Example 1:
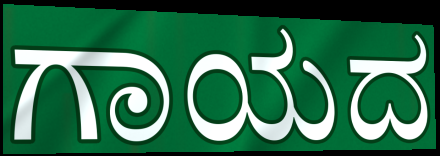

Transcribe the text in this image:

ಗಾಯದ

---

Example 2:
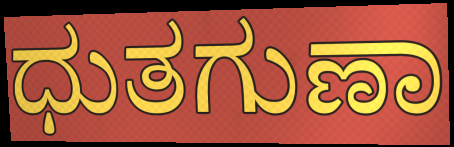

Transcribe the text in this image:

ಧುತಗುಣಾ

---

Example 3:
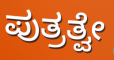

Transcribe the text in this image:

ಪುತ್ರತ್ವೇ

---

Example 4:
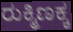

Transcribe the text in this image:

ರುಕ್ಮಿಣಕ್ಕ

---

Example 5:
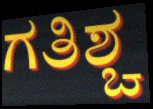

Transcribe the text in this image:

ಗತಿಶ್ಚ